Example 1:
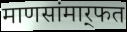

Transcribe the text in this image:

माणसांमार्फत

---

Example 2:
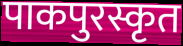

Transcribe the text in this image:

पाकपुरस्कृत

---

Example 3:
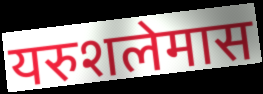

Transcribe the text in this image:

यरुशलेमास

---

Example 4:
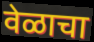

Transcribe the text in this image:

वेळाचा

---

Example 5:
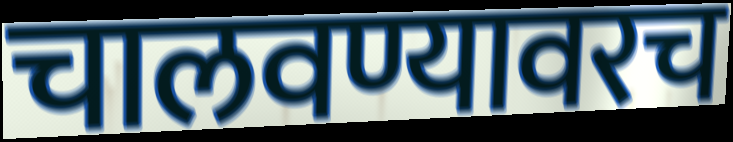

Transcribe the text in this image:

चालवण्यावरच